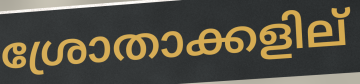
ശ്രോതാക്കളില്